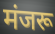
मंजरू